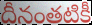
దీనంతటికీ